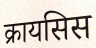
क्रायसिस